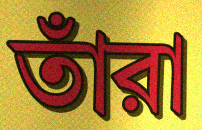
তাঁরা